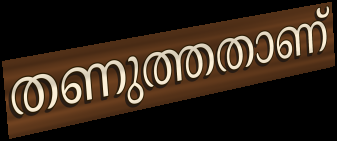
തണുത്തതാണ്